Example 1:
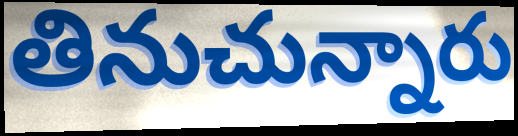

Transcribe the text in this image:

తినుచున్నారు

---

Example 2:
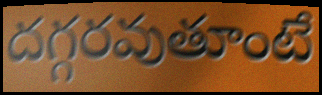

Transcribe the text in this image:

దగ్గరవుతూంటే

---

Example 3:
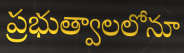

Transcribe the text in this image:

ప్రభుత్వాలలోనూ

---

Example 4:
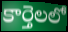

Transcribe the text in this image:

కార్తెలలో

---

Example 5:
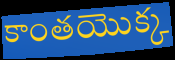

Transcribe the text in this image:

కాంతయొక్క